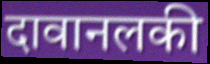
दावानलकी